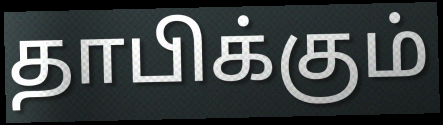
தாபிக்கும்